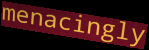
menacingly